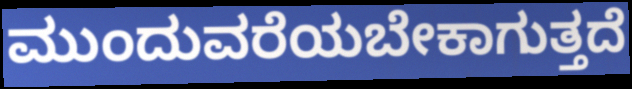
ಮುಂದುವರೆಯಬೇಕಾಗುತ್ತದೆ